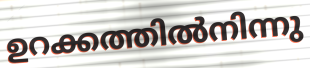
ഉറക്കത്തിൽനിന്നു